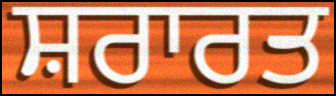
ਸ਼ਰਾਰਤ